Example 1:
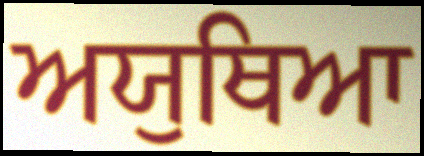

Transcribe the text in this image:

ਅਯੁਥਿਆ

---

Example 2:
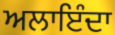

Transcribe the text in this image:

ਅਲਾਇੰਦਾ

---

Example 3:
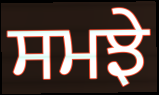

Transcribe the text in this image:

ਸਮਝੇ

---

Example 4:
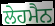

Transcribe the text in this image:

ਲੇਹਮੈਨ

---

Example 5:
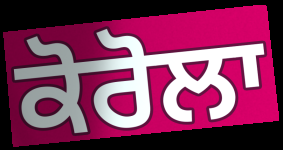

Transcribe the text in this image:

ਕੋਰੋਲਾ